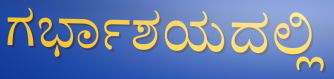
ಗರ್ಭಾಶಯದಲ್ಲಿ